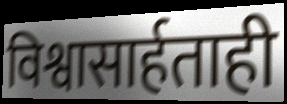
विश्वासार्हताही